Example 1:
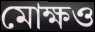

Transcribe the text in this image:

মোক্ষও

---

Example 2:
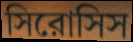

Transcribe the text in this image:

সিরোসিস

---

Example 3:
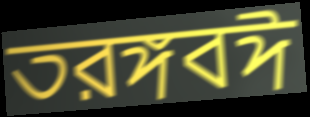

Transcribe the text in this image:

তরঙ্গবঈ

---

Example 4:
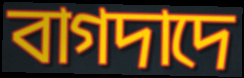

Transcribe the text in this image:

বাগদাদে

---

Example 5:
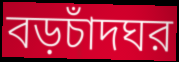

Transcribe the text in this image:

বড়চাঁদঘর